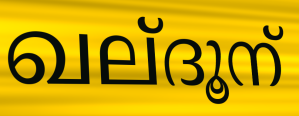
ഖല്ദൂന്